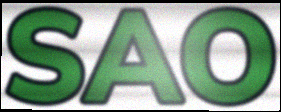
SAO